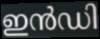
ഇൻഡി